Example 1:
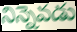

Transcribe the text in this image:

నిన్నెవడు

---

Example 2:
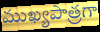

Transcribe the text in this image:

ముఖ్యపాత్రగా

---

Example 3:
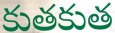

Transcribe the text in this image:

కుతకుత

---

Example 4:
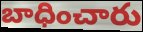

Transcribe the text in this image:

బాధించారు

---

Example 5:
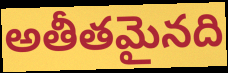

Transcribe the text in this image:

అతీతమైనది